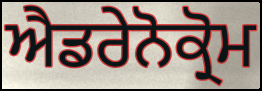
ਐਡਰੇਨੋਕ੍ਰੋਮ